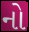
નો